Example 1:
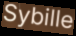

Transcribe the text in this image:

Sybille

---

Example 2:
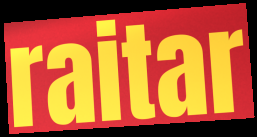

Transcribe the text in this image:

raitar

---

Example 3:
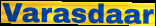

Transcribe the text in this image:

Varasdaar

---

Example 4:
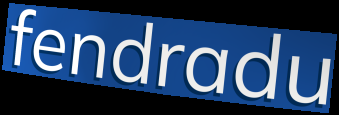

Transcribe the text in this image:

fendradu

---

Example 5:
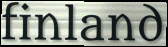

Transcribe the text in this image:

finland